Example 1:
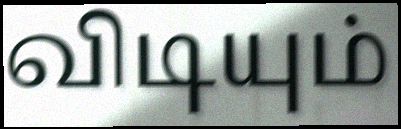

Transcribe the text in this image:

விடியும்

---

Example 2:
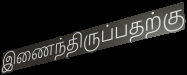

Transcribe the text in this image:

இணைந்திருப்பதற்கு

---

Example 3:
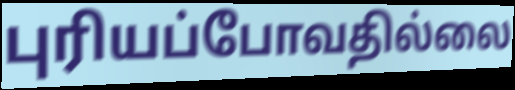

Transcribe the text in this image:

புரியப்போவதில்லை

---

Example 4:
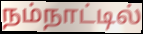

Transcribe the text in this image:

நம்நாட்டில்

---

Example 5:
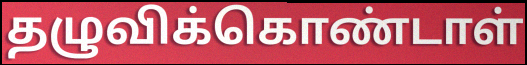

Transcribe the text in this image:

தழுவிக்கொண்டாள்